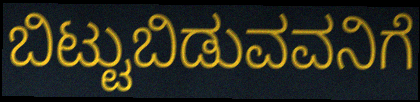
ಬಿಟ್ಟುಬಿಡುವವನಿಗೆ